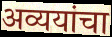
अव्ययांचा